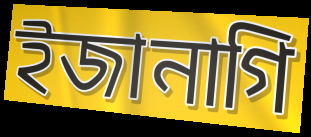
ইজানাগি